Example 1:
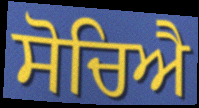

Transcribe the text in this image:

ਸੋਚਿਐ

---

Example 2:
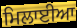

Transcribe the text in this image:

ਮਿਲਾਈਆ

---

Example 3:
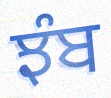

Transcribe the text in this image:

ਝੰਬ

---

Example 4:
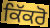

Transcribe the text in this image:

ਕਿੱਕਰੋ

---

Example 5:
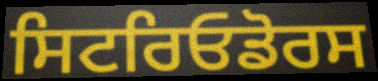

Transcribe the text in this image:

ਸਿਟਰਿਓਡੋਰਸ